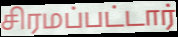
சிரமப்பட்டார்